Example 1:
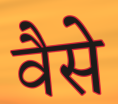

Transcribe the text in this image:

वैसे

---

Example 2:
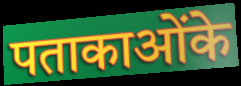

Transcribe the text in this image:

पताकाओंके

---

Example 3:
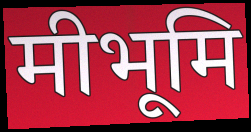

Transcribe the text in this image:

मीभूमि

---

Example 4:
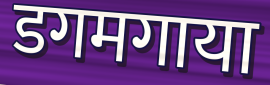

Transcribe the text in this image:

डगमगाया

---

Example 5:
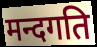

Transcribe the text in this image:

मन्दगति